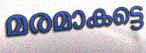
മരമാകട്ടെ